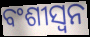
ବଂଶୀସ୍ୱନ